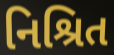
નિશ્રિત